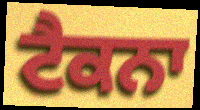
ਟੈਕਨਾ